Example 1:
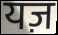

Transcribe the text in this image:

यज़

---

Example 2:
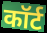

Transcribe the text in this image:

कॉर्ट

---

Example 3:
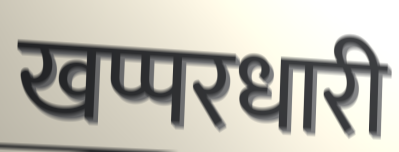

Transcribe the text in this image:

खप्परधारी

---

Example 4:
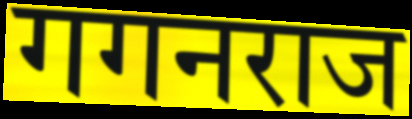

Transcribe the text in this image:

गगनराज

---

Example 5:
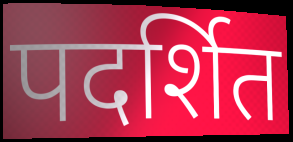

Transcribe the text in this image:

पदर्शित